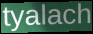
tyalach